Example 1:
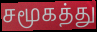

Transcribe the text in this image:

சமூகத்து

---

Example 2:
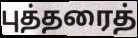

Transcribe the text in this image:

புத்தரைத்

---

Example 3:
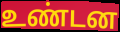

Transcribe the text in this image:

உண்டன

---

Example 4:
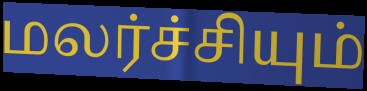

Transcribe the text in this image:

மலர்ச்சியும்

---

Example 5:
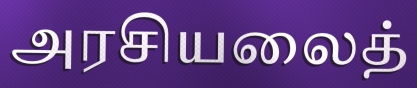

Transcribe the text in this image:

அரசியலைத்